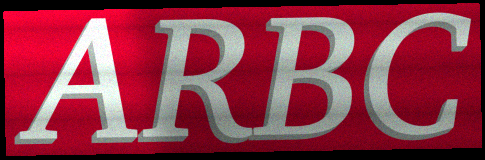
ARBC